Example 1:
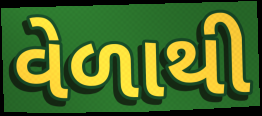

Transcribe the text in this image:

વેળાથી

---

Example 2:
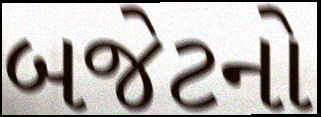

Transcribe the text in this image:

બજેટનો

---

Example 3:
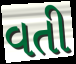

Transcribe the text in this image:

વતી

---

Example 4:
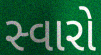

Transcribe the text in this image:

સ્વારો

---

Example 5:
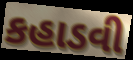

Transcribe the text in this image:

કહાડવી